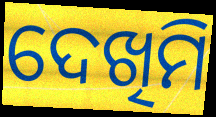
ଦେଖିମି